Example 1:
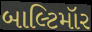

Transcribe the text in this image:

બાલ્ટિમૉર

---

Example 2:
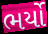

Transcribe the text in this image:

ભર્યો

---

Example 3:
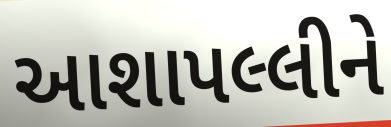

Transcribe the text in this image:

આશાપલ્લીને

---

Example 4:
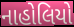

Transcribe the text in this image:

નાહોલિયો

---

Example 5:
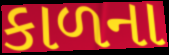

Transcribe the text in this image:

કાળના